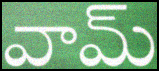
వామ్